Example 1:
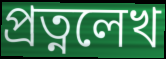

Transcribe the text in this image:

প্রত্নলেখ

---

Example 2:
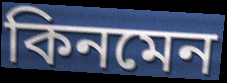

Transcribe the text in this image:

কিনমেন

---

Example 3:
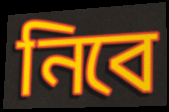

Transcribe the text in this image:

নিবে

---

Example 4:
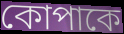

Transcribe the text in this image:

কোপাকে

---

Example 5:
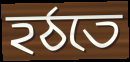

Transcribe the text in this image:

হঠতে